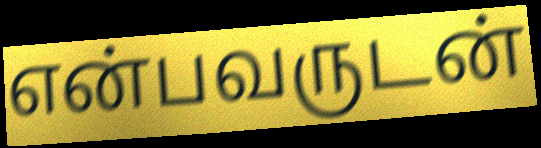
என்பவருடன்